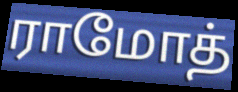
ராமோத்